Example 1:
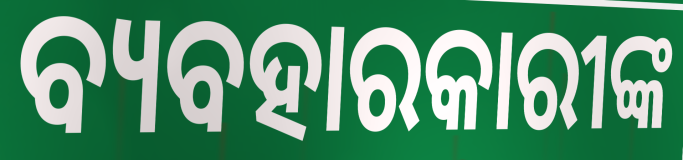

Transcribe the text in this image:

ବ୍ୟବହାରକାରୀଙ୍କ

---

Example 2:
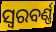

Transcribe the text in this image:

ସ୍ୱରବର୍ଣ୍ଣ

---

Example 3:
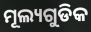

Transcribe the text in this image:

ମୂଲ୍ୟଗୁଡିକ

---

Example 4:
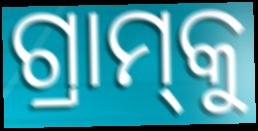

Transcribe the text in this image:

ଗ୍ରାମ୍‌କୁ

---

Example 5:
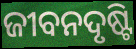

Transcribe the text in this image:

ଜୀବନଦୃଷ୍ଟି